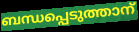
ബന്ധപ്പെടുത്താന്